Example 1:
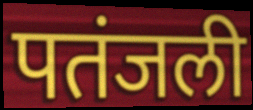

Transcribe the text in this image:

पतंजली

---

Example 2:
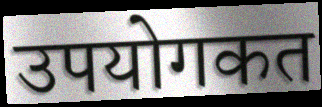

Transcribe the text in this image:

उपयोगकत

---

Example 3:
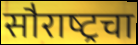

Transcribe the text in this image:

सौराष्ट्रचा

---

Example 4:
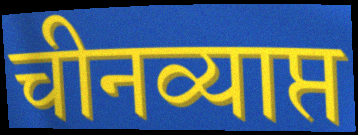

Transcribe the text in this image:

चीनव्याप्त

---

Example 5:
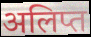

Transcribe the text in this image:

अलिप्त